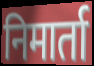
निमार्ता